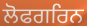
ਲੋਫਗਰਿਨ